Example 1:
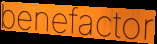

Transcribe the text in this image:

benefactor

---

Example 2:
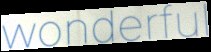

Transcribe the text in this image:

wonderful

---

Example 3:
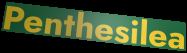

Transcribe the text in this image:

Penthesilea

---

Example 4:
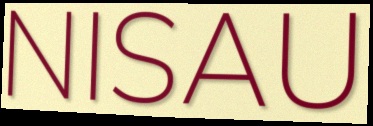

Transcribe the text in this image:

NISAU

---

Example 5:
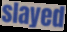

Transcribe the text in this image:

slayed